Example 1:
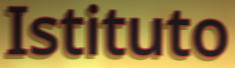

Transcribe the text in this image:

Istituto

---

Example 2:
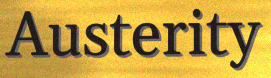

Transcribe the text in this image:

Austerity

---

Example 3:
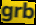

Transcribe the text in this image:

grb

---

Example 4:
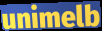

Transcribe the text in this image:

unimelb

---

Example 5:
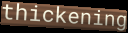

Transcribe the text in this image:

thickening